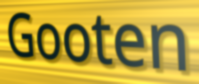
Gooten